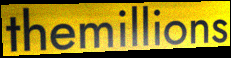
themillions